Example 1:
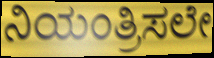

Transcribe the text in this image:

ನಿಯಂತ್ರಿಸಲೇ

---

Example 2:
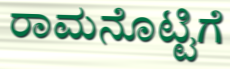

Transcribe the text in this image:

ರಾಮನೊಟ್ಟಿಗೆ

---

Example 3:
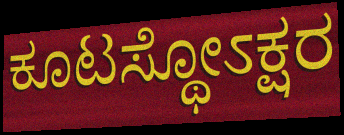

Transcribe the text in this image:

ಕೂಟಸ್ಥೋಽಕ್ಷರ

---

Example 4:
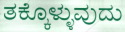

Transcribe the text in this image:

ತಕ್ಕೊಳ್ಳುವುದು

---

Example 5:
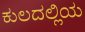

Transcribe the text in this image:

ಕುಲದಲ್ಲಿಯ